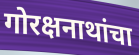
गोरक्षनाथांचा